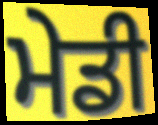
ਮੇਡੀ